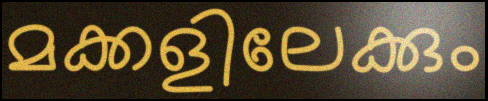
മക്കളിലേക്കും